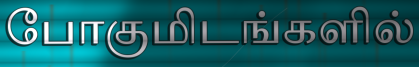
போகுமிடங்களில்